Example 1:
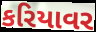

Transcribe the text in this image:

કરિયાવર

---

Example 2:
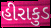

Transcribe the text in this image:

હીરાકુડ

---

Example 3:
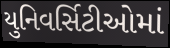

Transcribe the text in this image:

યુનિવર્સિટીઓમાં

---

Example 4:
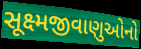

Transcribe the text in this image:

સૂક્ષ્મજીવાણુઓનો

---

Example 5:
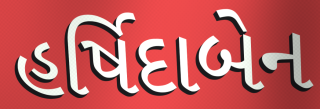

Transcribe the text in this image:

હર્ષિદાબેન